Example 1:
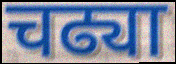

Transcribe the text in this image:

चढ्या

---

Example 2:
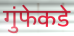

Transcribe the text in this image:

गुंफेकडे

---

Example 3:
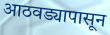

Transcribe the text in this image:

आठवड्यापासून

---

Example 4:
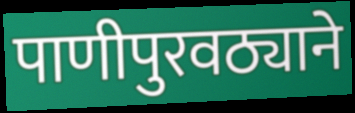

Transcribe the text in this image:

पाणीपुरवठ्याने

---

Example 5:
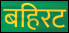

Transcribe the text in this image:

बहिरट